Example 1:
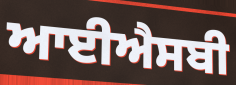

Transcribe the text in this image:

ਆਈਐਸਬੀ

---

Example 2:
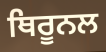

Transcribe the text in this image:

ਥਿਰੂਨਲ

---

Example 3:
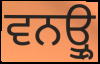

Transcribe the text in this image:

ਵਨਊ੍ਨ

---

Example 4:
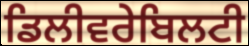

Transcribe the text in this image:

ਡਿਲੀਵਰੇਬਿਲਟੀ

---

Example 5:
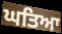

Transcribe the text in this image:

ਘਤਿਆ